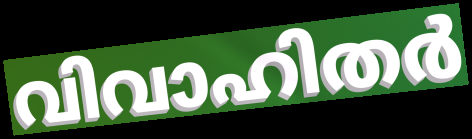
വിവാഹിതർ